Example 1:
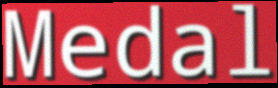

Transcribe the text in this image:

Medal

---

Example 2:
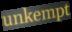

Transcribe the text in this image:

unkempt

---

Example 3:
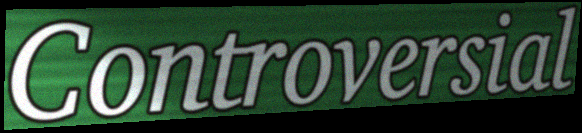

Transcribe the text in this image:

Controversial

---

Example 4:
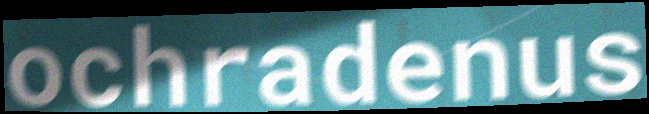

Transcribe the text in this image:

ochradenus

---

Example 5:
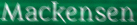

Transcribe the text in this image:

Mackensen